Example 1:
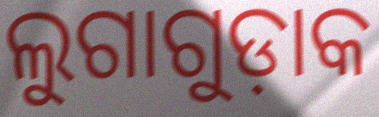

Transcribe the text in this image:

ଲୁଗାଗୁଡ଼ାକ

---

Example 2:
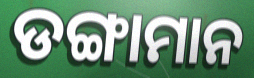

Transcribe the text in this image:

ଡଙ୍ଗାମାନ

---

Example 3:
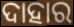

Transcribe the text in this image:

ଦାହାର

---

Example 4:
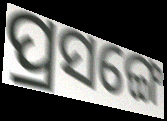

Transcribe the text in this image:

ପ୍ରସଙ୍ଗେ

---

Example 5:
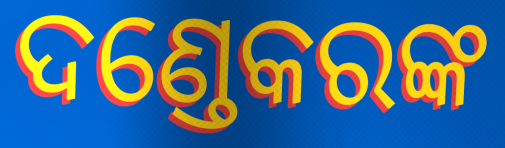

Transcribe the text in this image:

ଦଣ୍ଡେକରଙ୍କ